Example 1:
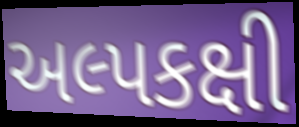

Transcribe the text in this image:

અલ્પકક્ષી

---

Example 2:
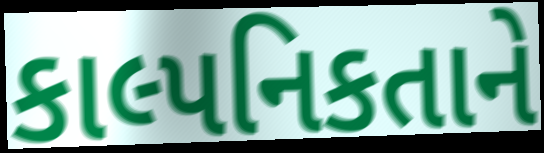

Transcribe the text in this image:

કાલ્પનિકતાને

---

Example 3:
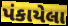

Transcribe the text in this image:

પંકાયેલા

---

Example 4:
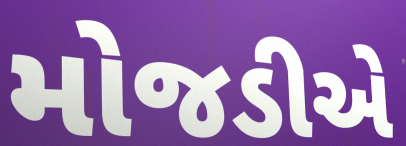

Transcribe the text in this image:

મોજડીએ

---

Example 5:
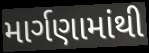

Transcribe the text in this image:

માર્ગણામાંથી